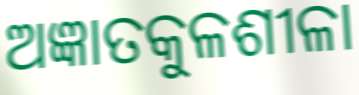
ଅଜ୍ଞାତକୁଳଶୀଳା